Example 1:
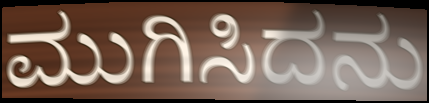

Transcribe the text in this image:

ಮುಗಿಸಿದನು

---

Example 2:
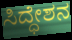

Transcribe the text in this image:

ಸಿದ್ಧೇಶನ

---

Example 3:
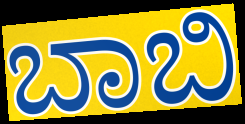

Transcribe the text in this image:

ಬಾಬಿ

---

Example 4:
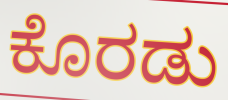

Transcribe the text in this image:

ಕೊರಡು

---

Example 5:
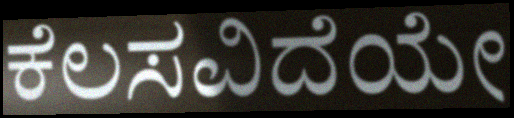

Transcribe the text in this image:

ಕೆಲಸವಿದೆಯೇ